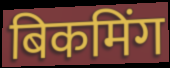
बिकमिंग